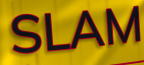
SLAM